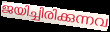
ജയിച്ചിരിക്കുന്നവ